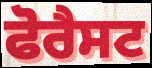
ਫੋਰੈਸਟ